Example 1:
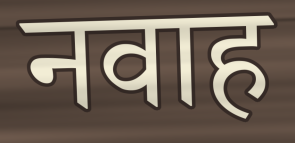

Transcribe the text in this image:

नवाह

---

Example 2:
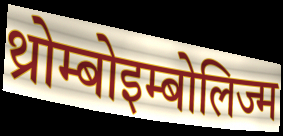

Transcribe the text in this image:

थ्रोम्बोइम्बोलिज्म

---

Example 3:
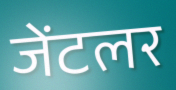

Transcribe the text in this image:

जेंटलर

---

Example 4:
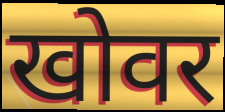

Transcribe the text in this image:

खोवर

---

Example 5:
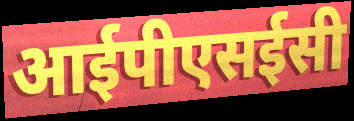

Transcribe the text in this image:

आईपीएसईसी